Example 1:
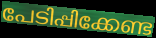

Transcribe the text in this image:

പേടിപ്പിക്കേണ്ട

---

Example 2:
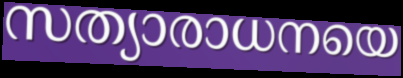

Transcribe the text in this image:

സത്യാരാധനയെ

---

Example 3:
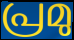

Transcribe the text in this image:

പ്രമു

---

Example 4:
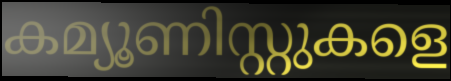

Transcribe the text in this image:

കമ്യൂണിസ്റ്റുകളെ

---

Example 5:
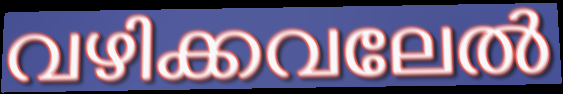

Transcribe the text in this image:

വഴിക്കവലേൽ